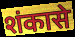
शंकासे